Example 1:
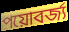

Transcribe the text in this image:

পয়োবর্জ্য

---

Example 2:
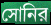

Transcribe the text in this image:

সোনির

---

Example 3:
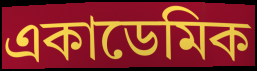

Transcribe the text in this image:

একাডেমিক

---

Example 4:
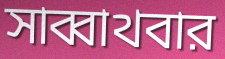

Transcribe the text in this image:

সাব্বাথবার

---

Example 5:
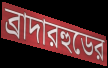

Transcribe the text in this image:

ব্রাদারহুডের